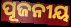
ପୂଜନୀୟ